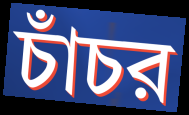
চাঁচর